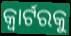
କ୍ୱାର୍ଟରକୁ